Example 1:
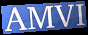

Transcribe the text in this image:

AMVI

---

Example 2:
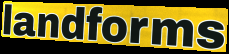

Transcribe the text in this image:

landforms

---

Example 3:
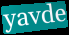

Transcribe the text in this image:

yavde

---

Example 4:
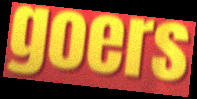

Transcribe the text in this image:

goers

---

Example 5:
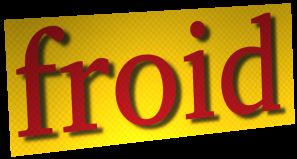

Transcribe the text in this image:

froid